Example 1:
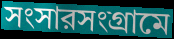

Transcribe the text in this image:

সংসারসংগ্রামে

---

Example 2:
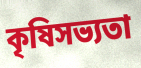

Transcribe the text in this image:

কৃষিসভ্যতা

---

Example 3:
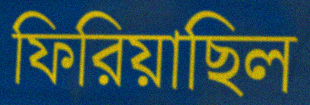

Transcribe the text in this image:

ফিরিয়াছিল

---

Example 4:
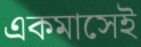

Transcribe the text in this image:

একমাসেই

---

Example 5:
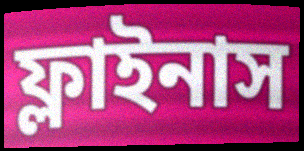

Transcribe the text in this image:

ফ্লাইনাস